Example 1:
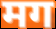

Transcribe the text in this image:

मग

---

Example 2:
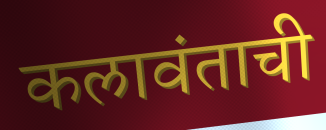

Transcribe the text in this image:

कलावंताची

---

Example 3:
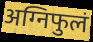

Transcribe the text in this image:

अग्निफुलं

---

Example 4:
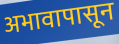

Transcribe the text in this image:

अभावापासून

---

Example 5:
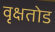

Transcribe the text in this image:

वृक्षतोड